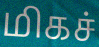
மிகச்